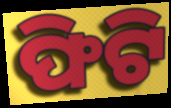
ଫିଟି